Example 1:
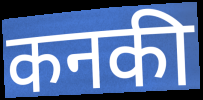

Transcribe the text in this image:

कनकी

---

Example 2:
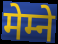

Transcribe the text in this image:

मेम्ने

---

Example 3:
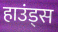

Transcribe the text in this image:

हाउंड्स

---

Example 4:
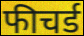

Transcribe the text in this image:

फीचर्ड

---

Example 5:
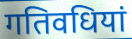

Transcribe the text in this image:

गतिवधियां